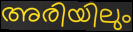
അരിയിലും